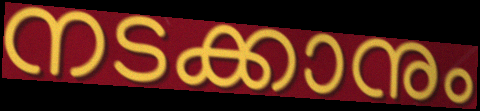
നടക്കാനും